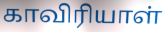
காவிரியாள்